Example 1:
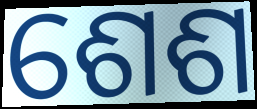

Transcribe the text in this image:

ଶେଶ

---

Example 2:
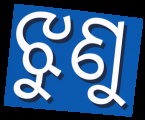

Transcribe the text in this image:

ଝୁଣୁ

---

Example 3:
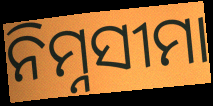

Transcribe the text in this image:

ନିମ୍ନସୀମା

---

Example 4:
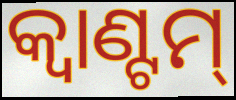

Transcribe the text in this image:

କ୍ଵାଣ୍ଟମ୍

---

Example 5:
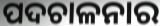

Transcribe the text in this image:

ପଦଚାଳନାର